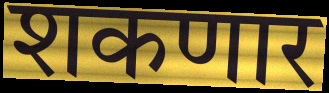
शकणार